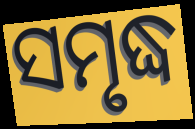
ସମୃଦ୍ଧ